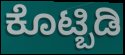
ಕೊಟ್ಬಿಡಿ